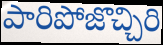
పారిపోజొచ్చిరి